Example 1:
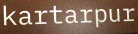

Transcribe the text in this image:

kartarpur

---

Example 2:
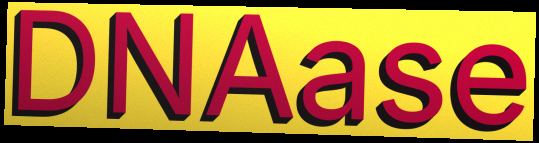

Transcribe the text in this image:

DNAase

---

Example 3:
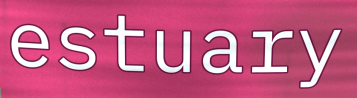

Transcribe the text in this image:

estuary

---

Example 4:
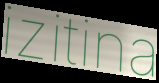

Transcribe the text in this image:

izitina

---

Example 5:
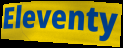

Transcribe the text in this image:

Eleventy